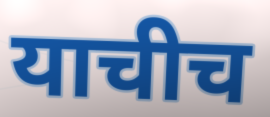
याचीच